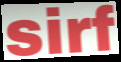
sirf